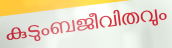
കുടുംബജീവിതവും